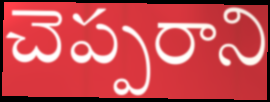
చెప్పరాని